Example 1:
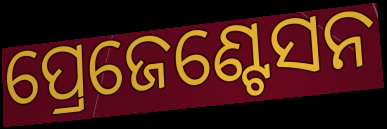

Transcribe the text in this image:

ପ୍ରେଜେଣ୍ଟେସନ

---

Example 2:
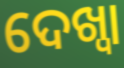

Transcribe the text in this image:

ଦେଖ୍ବା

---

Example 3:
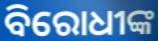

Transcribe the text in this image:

ବିରୋଧୀଙ୍କ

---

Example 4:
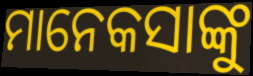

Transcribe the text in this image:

ମାନେକସାଙ୍କୁ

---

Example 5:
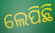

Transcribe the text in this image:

ଲେପିଛି